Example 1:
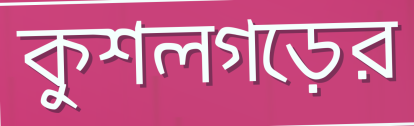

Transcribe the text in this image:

কুশলগড়ের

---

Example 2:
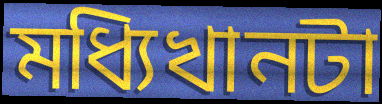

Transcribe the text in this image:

মধ্যিখানটা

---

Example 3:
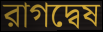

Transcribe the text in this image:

রাগদ্বেষ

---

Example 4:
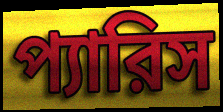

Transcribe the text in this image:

প্যারিস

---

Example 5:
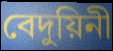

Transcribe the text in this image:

বেদুয়িনী